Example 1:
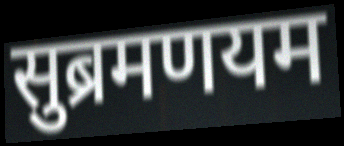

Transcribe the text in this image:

सुब्रमणयम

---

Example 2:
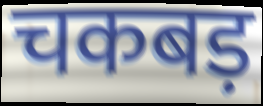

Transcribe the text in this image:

चकबड़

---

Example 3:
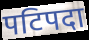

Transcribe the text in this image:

पटिपदा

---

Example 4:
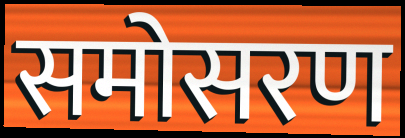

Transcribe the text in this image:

समोसरण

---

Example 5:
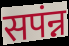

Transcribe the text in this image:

सपंन्न